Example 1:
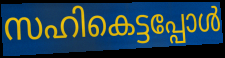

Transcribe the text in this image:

സഹികെട്ടപ്പോൾ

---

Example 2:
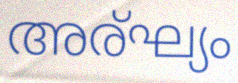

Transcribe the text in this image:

അര്ഘ്യം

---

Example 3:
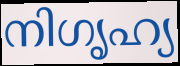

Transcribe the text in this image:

നിഗൃഹ്യ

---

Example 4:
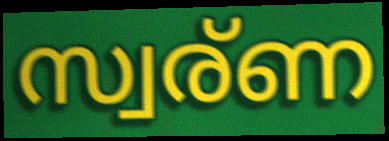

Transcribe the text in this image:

സ്വര്ണ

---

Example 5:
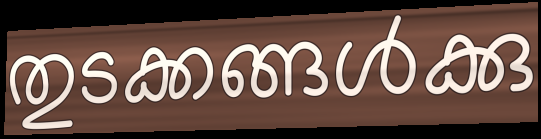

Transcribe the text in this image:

തുടക്കങ്ങൾക്കു